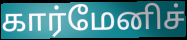
கார்மேனிச்